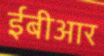
ईबीआर